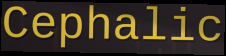
Cephalic